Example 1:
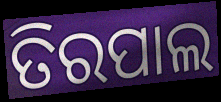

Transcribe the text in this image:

ତିରପାଲ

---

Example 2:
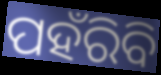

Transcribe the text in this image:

ପହଁରିବି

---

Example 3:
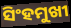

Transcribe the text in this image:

ସିଂହମୁଖୀ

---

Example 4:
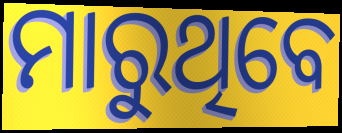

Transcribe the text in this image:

ମାରୁଥିବେ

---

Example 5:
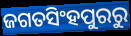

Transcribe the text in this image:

ଜଗତସିଂହପୁରରୁ